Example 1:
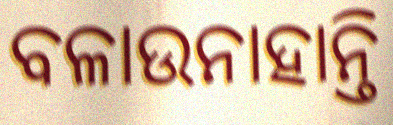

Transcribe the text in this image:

ବଳାଉନାହାନ୍ତି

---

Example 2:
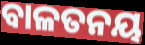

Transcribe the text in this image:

ବାଳତନୟ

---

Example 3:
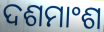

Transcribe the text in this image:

ଦଶମାଂଶ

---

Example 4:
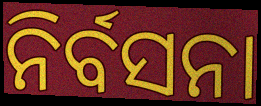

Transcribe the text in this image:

ନିର୍ବସନା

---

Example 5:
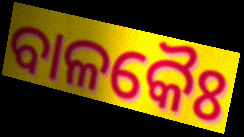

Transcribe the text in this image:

ବାଳକୈଃ